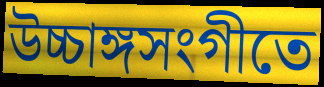
উচ্চাঙ্গসংগীতে